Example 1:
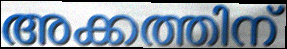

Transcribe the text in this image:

അക്കത്തിന്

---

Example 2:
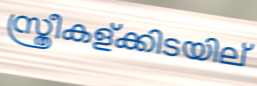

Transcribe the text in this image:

സ്ത്രീകള്ക്കിടയില്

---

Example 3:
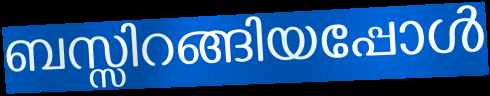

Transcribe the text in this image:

ബസ്സിറങ്ങിയപ്പോൾ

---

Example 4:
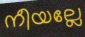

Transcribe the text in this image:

നീയല്ലേ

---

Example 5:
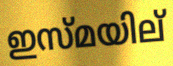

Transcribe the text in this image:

ഇസ്മയില്